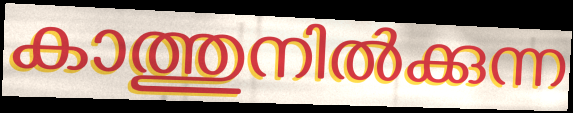
കാത്തുനിൽക്കുന്ന